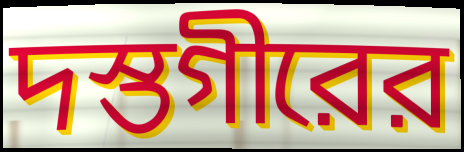
দস্তগীরের